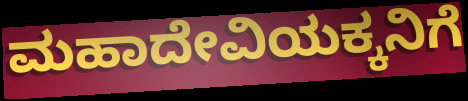
ಮಹಾದೇವಿಯಕ್ಕನಿಗೆ